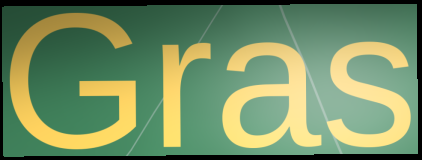
Gras